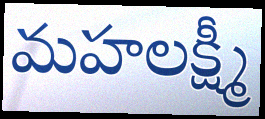
మహలక్ష్మీ